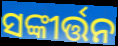
ସଙ୍କୀର୍ତ୍ତନ